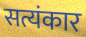
सत्यंकार